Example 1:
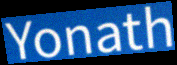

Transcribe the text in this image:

Yonath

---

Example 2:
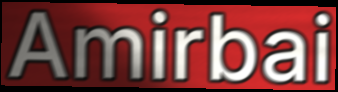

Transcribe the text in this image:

Amirbai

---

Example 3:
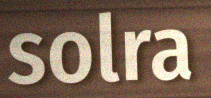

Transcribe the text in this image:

solra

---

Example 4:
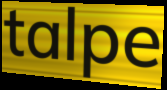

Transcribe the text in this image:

talpe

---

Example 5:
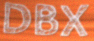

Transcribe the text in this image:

DBX